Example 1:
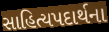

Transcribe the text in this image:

સાહિત્યપદાર્થના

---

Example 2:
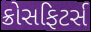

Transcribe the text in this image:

ક્રોસફિટર્સ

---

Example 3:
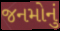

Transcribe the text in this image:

જનમોનું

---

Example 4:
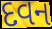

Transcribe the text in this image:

દવન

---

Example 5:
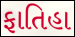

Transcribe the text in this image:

ફાતિહા